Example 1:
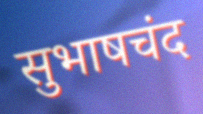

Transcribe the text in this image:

सुभाषचंद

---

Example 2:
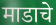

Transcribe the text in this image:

माडाचे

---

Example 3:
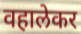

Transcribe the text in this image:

वहालेकर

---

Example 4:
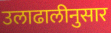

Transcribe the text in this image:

उलाढालीनुसार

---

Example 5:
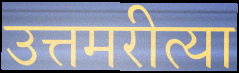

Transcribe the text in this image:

उत्तमरीत्या